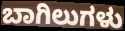
ಬಾಗಿಲುಗಳು